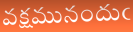
వక్షమునందుఁ